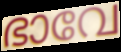
ഭാവേ